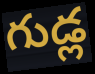
గుడ్ల